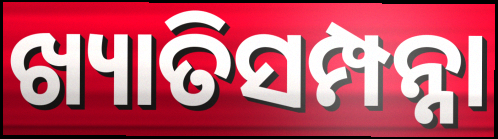
ଖ୍ୟାତିସମ୍ପନ୍ନା